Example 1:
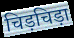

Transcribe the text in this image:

चिड़चिड़ा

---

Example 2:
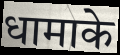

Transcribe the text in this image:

धामाके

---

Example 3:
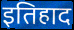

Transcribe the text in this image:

इतिहाद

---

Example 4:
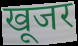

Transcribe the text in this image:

खूजर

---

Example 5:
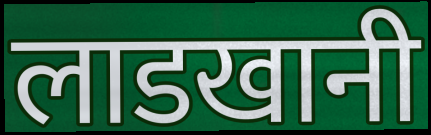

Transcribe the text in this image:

लाडखानी